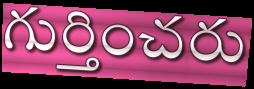
గుర్తించరు